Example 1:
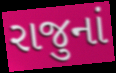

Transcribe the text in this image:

રાજુનાં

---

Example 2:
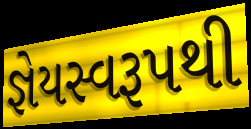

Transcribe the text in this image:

જ્ઞેયસ્વરૂપથી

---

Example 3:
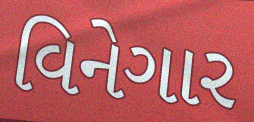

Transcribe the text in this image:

વિનેગાર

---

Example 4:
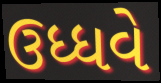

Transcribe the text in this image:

ઉધ્ધવે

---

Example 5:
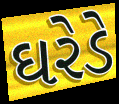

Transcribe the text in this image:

ઘરેડે